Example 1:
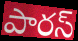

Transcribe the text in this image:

పారస్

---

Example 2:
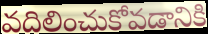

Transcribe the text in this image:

వదిలించుకోవడానికి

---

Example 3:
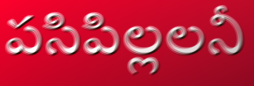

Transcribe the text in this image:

పసిపిల్లలనీ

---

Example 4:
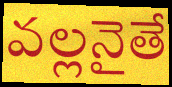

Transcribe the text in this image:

వల్లనైతే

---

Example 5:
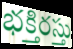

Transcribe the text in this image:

భక్తిరస్తు